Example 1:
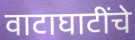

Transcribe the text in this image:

वाटाघाटींचे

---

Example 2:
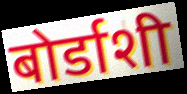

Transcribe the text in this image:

बोर्डाशी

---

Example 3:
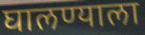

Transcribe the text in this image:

घालण्याला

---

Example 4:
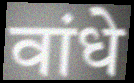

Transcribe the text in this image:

वांधे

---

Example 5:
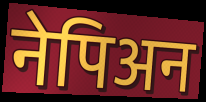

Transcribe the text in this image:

नेपिअन